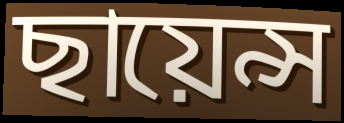
ছায়েন্স